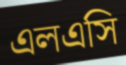
এলএসি